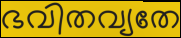
ഭവിതവ്യതേ